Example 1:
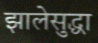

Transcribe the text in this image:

झालेसुद्धा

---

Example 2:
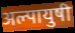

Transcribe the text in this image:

अल्पायुषी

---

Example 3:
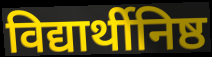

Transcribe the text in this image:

विद्यार्थीनिष्ठ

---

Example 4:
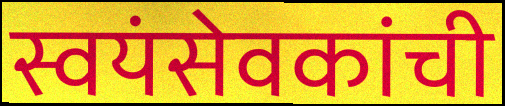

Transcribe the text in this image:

स्वयंसेवकांची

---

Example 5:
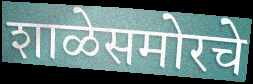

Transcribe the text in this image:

शाळेसमोरचे